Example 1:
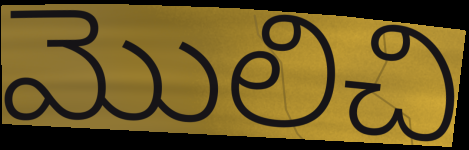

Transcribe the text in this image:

మొలిచి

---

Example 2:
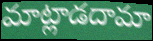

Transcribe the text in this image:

మాట్లాడదామా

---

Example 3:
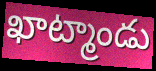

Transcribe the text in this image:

ఖాట్మాండు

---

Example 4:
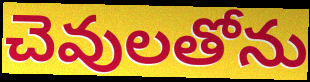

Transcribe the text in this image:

చెవులతోను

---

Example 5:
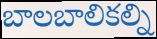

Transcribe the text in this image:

బాలబాలికల్ని